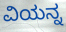
ವಿಯನ್ನ